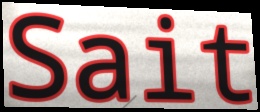
Sait